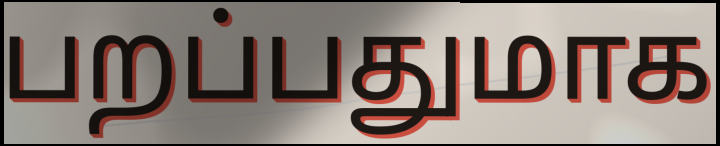
பறப்பதுமாக